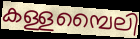
കള്ളമ്പൈലി